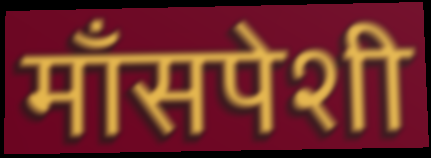
माँसपेशी